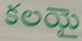
కలయై